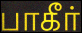
பாகீர்